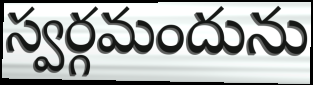
స్వర్గమందును